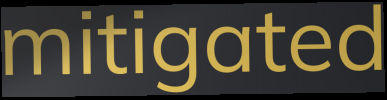
mitigated